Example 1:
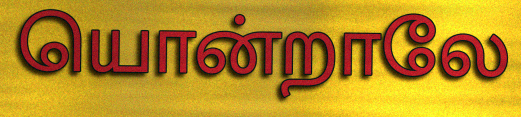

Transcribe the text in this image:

யொன்றாலே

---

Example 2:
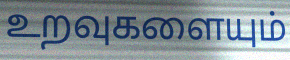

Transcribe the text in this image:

உறவுகளையும்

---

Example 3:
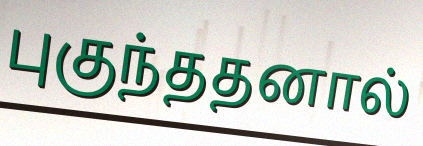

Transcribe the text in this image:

புகுந்ததனால்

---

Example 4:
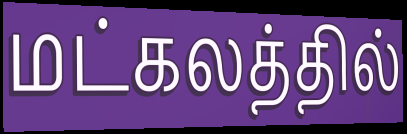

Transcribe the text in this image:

மட்கலத்தில்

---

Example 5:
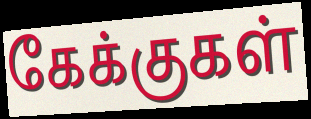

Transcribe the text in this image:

கேக்குகள்